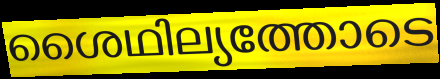
ശൈഥില്യത്തോടെ